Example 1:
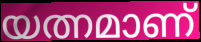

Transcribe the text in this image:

യത്നമാണ്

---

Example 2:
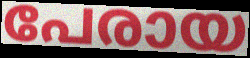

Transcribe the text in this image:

പേരായ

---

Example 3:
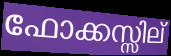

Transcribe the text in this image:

ഫോക്കസ്സില്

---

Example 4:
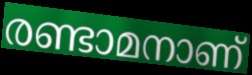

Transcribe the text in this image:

രണ്ടാമനാണ്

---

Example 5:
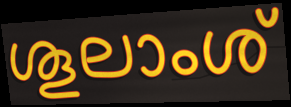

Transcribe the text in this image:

ശൂലാംശ്